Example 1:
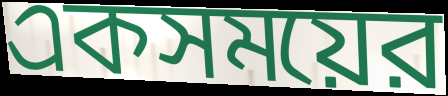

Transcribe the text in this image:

একসময়ের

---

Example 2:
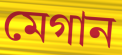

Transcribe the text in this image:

মেগান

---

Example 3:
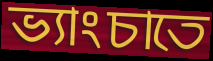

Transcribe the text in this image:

ভ্যাংচাতে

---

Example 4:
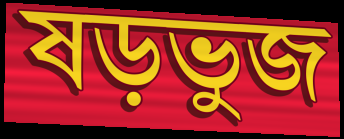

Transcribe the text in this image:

ষড়ভুজ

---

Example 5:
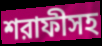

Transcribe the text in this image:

শরাফীসহ